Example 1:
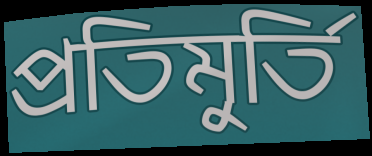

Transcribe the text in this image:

প্রতিমুর্তি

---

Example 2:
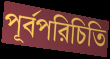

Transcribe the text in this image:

পূর্বপরিচিতি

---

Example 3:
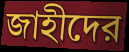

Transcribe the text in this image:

জাহীদের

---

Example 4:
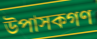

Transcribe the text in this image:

উপাসকগণ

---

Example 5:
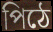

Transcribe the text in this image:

পিঠে